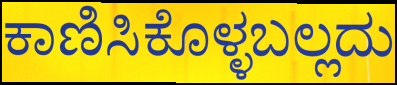
ಕಾಣಿಸಿಕೊಳ್ಳಬಲ್ಲದು